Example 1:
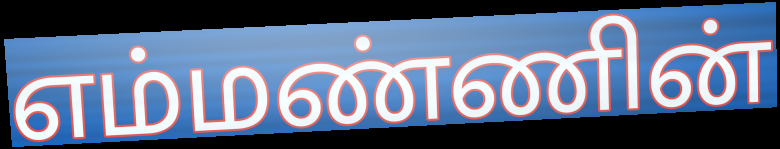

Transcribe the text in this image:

எம்மண்ணின்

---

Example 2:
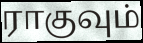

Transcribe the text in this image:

ராகுவும்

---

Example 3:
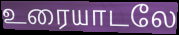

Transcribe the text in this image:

உரையாடலே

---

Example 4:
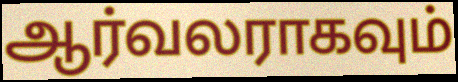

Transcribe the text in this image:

ஆர்வலராகவும்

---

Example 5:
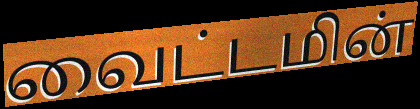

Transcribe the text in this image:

வைட்டமின்